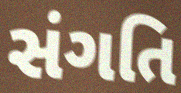
સંગતિ